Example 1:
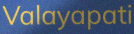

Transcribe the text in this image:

Valayapati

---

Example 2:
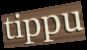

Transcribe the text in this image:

tippu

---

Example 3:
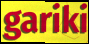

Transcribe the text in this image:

gariki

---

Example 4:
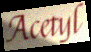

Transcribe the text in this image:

Acetyl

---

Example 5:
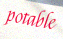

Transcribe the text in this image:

potable